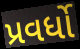
પ્રવર્ધો